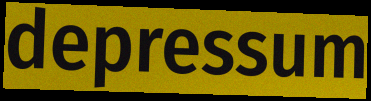
depressum